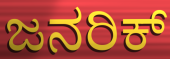
ಜನರಿಕ್